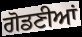
ਗੋਡਣੀਆਂ